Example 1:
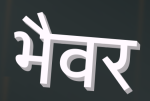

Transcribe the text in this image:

भैवर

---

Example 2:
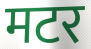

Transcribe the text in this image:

मटर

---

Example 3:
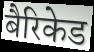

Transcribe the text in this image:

बैरिकेड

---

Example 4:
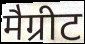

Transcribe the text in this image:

मैग्रीट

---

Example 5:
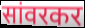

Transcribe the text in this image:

सांवरकर